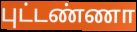
புட்டண்ணா